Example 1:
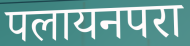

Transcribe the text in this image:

पलायनपरा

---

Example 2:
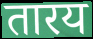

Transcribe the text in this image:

तारय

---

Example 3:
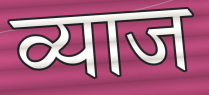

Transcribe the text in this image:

व्याज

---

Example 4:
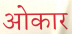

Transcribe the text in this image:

ओकार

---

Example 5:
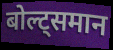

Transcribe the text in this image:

बोल्ट्समान